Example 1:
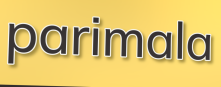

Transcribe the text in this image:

parimala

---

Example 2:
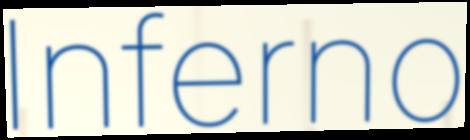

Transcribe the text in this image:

Inferno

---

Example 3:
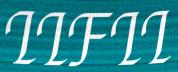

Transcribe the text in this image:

IIFII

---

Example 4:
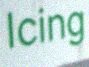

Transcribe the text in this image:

Icing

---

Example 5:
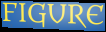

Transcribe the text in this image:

FIGURE